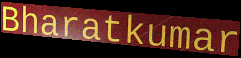
Bharatkumar